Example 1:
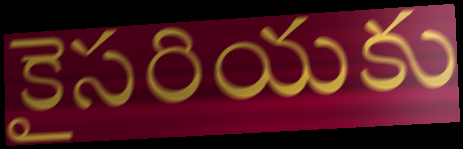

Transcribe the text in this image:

కైసరియకు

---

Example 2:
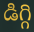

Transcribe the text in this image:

డిగ్గి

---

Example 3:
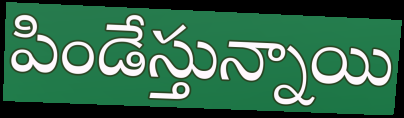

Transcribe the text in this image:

పిండేస్తున్నాయి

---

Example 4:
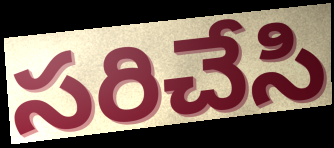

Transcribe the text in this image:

సరిచేసి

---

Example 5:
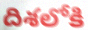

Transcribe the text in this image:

దిశలోకి